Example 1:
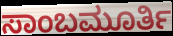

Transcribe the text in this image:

ಸಾಂಬಮೂರ್ತಿ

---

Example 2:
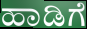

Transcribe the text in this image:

ಹಾಡಿಗೆ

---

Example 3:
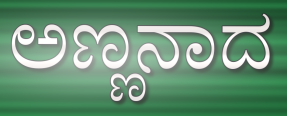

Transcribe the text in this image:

ಅಣ್ಣನಾದ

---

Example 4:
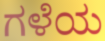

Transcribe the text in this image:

ಗಳೆಯ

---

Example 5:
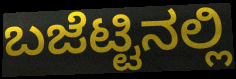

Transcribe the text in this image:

ಬಜೆಟ್ಟಿನಲ್ಲಿ